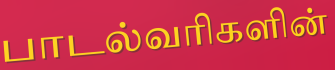
பாடல்வரிகளின்